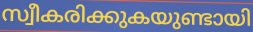
സ്വീകരിക്കുകയുണ്ടായി